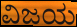
ವಿಜಯ